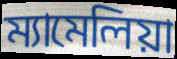
ম্যামেলিয়া